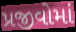
પ્રજીવોમાં